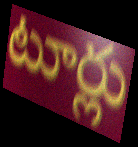
టూర్లు